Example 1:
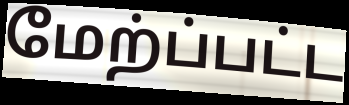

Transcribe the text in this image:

மேற்ப்பட்ட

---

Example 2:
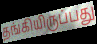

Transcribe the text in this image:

தங்கியிருப்பது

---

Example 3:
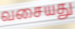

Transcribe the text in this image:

வசையது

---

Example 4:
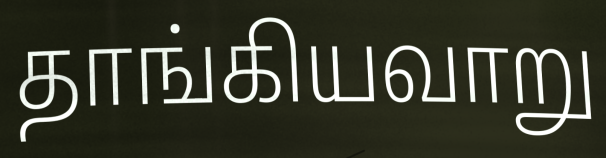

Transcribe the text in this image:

தாங்கியவாறு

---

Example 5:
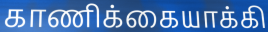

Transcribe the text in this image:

காணிக்கையாக்கி